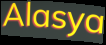
Alasya